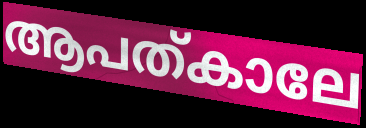
ആപത്കാലേ